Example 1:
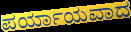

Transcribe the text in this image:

ಪರ್ಯಾಯವಾದ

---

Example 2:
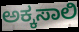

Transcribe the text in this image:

ಅಕ್ಕಸಾಲಿ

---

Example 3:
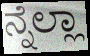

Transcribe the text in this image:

ನ್ನೆಲ್ಲಾ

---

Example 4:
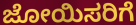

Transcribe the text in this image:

ಜೋಯಿಸರಿಗೆ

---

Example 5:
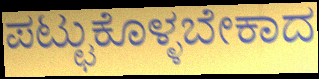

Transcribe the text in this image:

ಪಟ್ಟುಕೊಳ್ಳಬೇಕಾದ